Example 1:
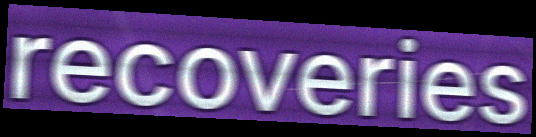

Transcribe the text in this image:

recoveries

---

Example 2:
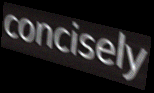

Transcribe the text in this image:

concisely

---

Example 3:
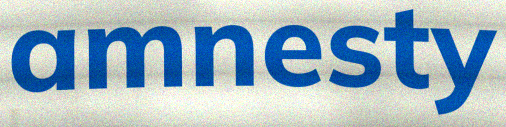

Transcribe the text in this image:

amnesty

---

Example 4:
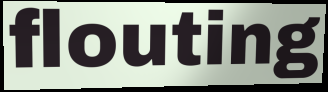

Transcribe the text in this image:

flouting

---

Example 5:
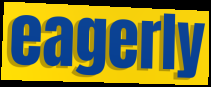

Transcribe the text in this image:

eagerly